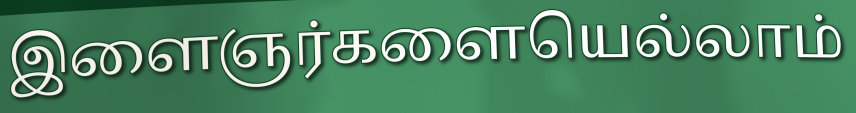
இளைஞர்களையெல்லாம்